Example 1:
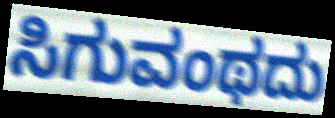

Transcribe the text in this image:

ಸಿಗುವಂಥದು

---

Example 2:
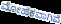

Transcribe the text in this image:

ಮೋಹಕವಾಗಿವೆ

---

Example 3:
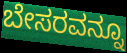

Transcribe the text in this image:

ಬೇಸರವನ್ನೂ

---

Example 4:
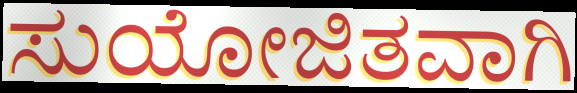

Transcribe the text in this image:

ಸುಯೋಜಿತವಾಗಿ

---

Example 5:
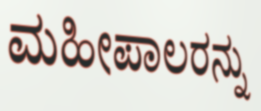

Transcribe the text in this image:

ಮಹೀಪಾಲರನ್ನು